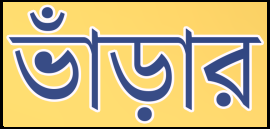
ভাঁড়ার